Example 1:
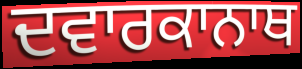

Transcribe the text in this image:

ਦਵਾਰਕਾਨਾਥ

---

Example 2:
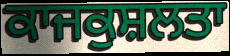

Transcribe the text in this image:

ਕਾਜਕੁਸ਼ਲਤਾ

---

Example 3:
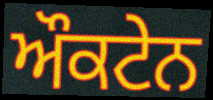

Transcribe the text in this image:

ਔਕਟੇਨ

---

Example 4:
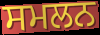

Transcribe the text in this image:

ਸਮਲਨ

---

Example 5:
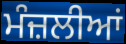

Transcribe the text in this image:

ਮੰਜ਼ਲੀਆਂ